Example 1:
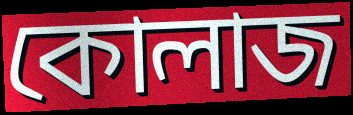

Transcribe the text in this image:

কোলাজ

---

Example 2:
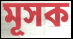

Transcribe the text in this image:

মূসক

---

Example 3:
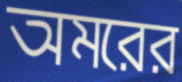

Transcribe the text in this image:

অমরের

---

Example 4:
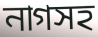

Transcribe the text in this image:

নাগসহ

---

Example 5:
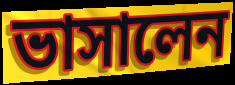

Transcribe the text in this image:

ভাসালেন